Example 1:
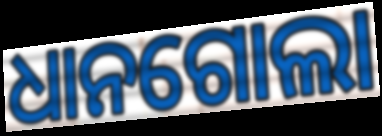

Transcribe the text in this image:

ଧାନଗୋଲା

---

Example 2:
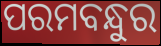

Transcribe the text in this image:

ପରମବନ୍ଧୁର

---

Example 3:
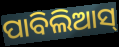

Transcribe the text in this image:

ପାବିଲିଆସ୍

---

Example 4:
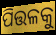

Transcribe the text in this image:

ପିତ୍ତଳକୁ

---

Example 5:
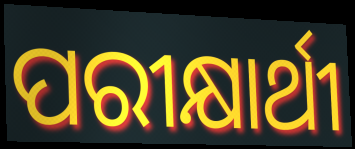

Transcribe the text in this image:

ପରୀକ୍ଷାର୍ଥୀ